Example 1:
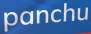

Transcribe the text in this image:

panchu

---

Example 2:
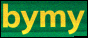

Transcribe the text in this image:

bymy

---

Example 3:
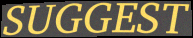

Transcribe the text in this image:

SUGGEST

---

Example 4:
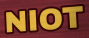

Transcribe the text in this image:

NIOT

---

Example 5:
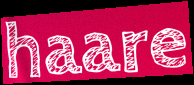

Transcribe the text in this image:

haare